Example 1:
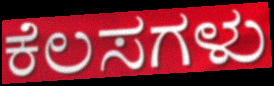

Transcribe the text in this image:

ಕೆಲಸಗಳು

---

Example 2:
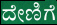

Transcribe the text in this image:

ದೇಣಿಗೆ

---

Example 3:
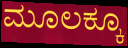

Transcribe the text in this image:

ಮೂಲಕ್ಕೂ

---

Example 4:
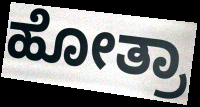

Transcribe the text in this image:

ಹೋತ್ರಾ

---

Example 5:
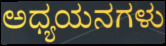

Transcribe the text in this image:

ಅಧ್ಯಯನಗಳು